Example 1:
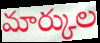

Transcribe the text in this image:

మార్కుల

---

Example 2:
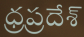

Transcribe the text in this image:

ధ్రప్రదేశ్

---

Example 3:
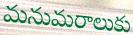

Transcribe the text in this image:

మనుమరాలుకు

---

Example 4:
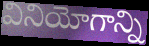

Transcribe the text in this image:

వినియోగాన్ని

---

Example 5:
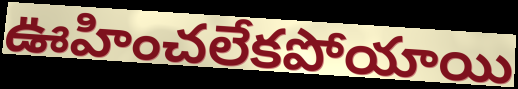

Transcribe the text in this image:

ఊహించలేకపోయాయి